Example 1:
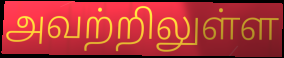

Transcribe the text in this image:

அவற்றிலுள்ள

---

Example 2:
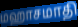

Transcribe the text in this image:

மஹாசமாதி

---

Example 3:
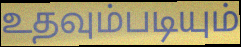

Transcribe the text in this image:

உதவும்படியும்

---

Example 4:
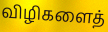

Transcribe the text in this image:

விழிகளைத்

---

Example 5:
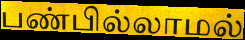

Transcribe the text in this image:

பண்பில்லாமல்